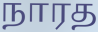
நாரத